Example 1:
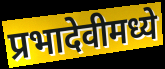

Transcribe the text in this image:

प्रभादेवीमध्ये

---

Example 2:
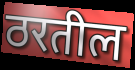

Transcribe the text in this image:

ठरतील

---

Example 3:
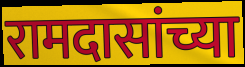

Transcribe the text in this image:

रामदासांच्या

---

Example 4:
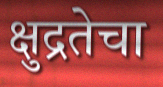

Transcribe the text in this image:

क्षुद्रतेचा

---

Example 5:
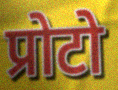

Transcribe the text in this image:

प्रोटो